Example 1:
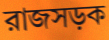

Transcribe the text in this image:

রাজসড়ক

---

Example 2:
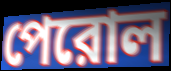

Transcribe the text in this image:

পেরোল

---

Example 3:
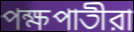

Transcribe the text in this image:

পক্ষপাতীরা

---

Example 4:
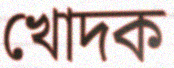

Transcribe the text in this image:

খোদক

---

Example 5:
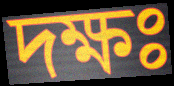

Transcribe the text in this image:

দক্ষঃ